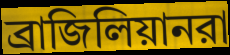
ব্রাজিলিয়ানরা